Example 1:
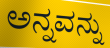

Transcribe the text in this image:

ಅನ್ನವನ್ನು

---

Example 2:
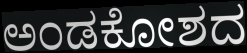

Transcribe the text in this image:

ಅಂಡಕೋಶದ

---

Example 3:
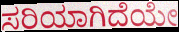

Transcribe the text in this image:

ಸರಿಯಾಗಿದೆಯೇ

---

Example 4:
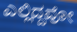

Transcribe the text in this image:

ಎಲ್ಲಿದ್ದವೋ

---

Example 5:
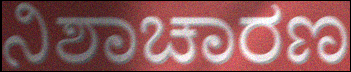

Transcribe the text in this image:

ನಿಶಾಚಾರಣ